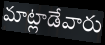
మాట్లాడేవారు